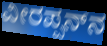
ವೀರಪ್ಪನ್‍ನ